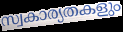
സ്വകാര്യതകളും